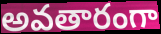
అవతారంగా